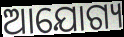
ଆଯୋଗ୍ୟ